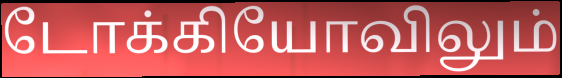
டோக்கியோவிலும்